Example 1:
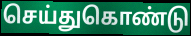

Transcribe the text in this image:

செய்துகொண்டு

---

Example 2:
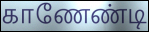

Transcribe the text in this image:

காணேண்டி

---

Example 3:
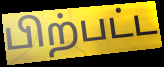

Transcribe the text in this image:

பிற்பட்ட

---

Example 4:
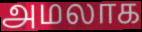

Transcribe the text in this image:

அமலாக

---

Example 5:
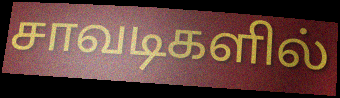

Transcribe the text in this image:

சாவடிகளில்